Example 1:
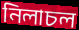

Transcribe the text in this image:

নিলাচল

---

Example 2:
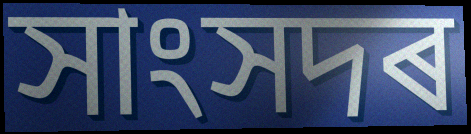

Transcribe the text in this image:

সাংসদৰ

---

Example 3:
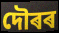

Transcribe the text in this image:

দৌৰৰ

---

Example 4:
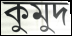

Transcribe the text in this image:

কুমুদ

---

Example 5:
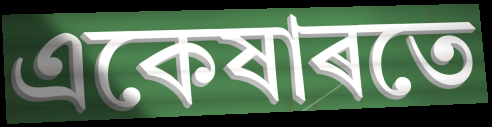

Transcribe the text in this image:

একেষাৰতে